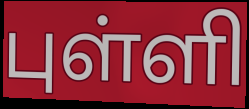
புள்ளி